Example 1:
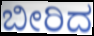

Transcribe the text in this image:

ಬೀರಿದ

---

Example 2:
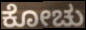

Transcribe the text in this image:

ಕೋಚು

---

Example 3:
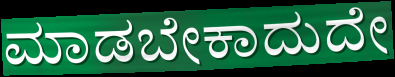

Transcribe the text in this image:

ಮಾಡಬೇಕಾದುದೇ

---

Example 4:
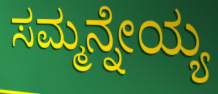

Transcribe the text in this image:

ಸಮ್ಮನ್ನೇಯ್ಯ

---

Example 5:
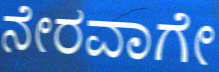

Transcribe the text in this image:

ನೇರವಾಗೇ